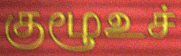
குழூஉச்